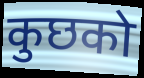
कुछको